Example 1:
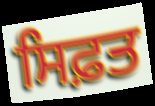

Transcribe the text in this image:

ਸਿਫ਼ਤ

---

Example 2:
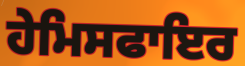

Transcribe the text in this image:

ਹੇਮਿਸਫਾਇਰ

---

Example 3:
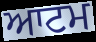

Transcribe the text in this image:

ਆਟਮ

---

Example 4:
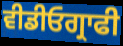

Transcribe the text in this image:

ਵੀਡੀਓਗ੍ਰਾਫੀ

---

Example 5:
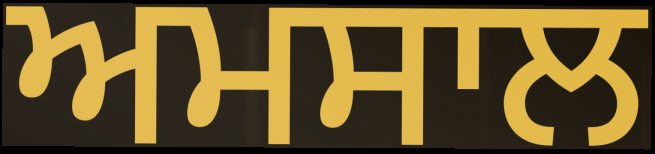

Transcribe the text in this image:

ਅਮਸਾਲ